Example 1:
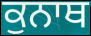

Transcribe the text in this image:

ਕੁਨਾਥ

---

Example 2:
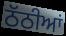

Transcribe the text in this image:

ਠੱਠੀਆਂ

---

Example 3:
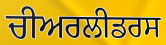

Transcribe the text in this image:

ਚੀਅਰਲੀਡਰਸ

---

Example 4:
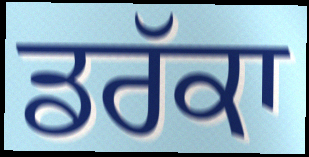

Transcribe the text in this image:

ਡਰੱਕਾ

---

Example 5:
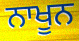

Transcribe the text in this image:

ਨਾਖੂਨ